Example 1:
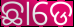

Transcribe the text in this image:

ଛାଡେ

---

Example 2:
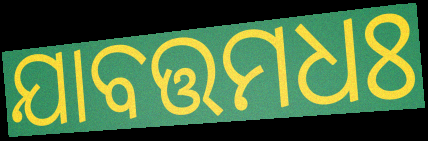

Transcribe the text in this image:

ଯାବତ୍ତମଧଃ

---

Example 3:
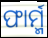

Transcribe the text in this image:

ଫାର୍ମ୍ମ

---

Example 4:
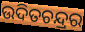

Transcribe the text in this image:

ଉଦିତଚନ୍ଦ୍ରର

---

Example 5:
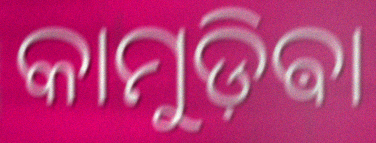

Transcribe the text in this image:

କାମୁଡ଼ିଵା